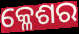
କ୍ଳେଶର